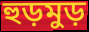
হুড়মুড়